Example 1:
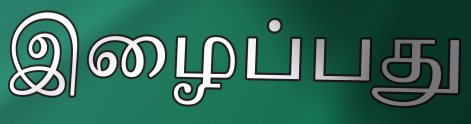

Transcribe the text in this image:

இழைப்பது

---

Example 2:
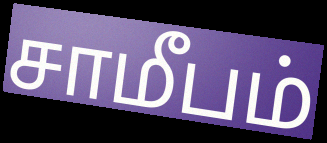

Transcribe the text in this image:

சாமீபம்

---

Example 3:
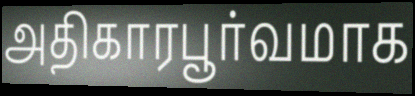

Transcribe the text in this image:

அதிகாரபூர்வமாக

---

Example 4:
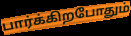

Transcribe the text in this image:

பார்க்கிறபோதும்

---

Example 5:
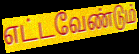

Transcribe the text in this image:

எட்டவேண்டும்